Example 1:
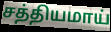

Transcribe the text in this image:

சத்தியமாய்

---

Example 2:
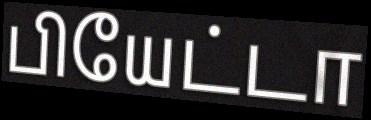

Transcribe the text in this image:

பியேட்டா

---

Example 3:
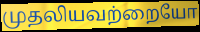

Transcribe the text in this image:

முதலியவற்றையோ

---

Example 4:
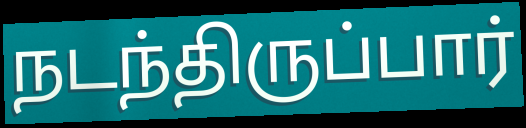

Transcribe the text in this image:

நடந்திருப்பார்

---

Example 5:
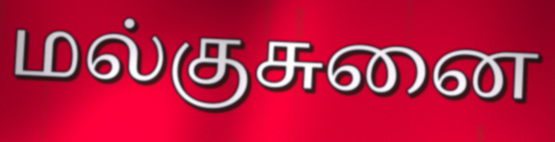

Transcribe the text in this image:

மல்குசுனை